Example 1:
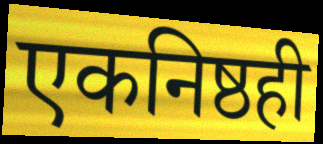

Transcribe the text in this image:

एकनिष्ठही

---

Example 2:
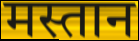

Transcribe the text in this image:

मस्तान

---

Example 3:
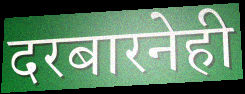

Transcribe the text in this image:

दरबारनेही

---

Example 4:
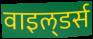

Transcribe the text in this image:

वाइल्डर्स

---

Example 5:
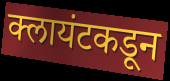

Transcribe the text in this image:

क्लायंटकडून